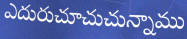
ఎదురుచూచుచున్నాము